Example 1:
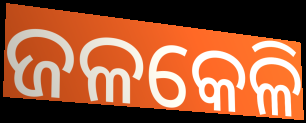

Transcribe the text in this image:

ଜଳକେଳି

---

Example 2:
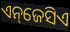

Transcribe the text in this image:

ଏନ୍‌ଜେସିଏ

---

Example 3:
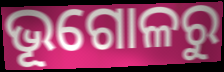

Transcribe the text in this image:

ଭୂଗୋଳରୁ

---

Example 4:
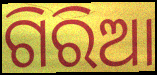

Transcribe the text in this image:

ଗିରିଆ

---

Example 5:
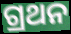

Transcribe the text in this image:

ଗ୍ରଥନ